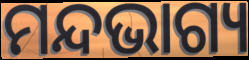
ମନ୍ଦଭାଗ୍ୟ